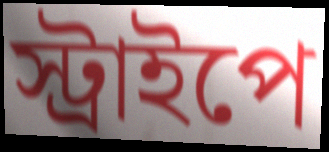
স্ট্রাইপে